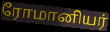
ரோமானியர்